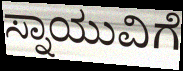
ಸ್ನಾಯುವಿಗೆ